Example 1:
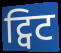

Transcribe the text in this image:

ट्विट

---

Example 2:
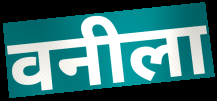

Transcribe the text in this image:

वनीला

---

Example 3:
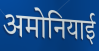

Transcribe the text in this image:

अमोनियाई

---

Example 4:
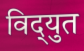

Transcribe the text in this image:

विद्‌युत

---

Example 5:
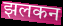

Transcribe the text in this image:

झलकन